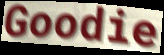
Goodie